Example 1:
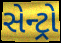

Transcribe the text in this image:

સેન્ટ્રો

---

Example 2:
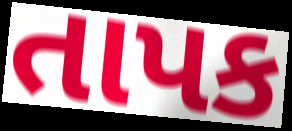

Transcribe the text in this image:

તાપક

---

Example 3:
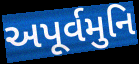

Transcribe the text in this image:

અપૂર્વમુનિ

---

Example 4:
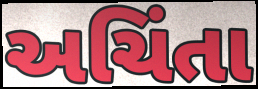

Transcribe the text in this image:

અચિંતા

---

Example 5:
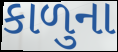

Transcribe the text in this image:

કાળુના